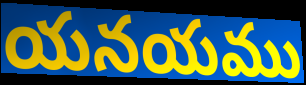
యనయము